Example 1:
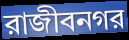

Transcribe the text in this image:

রাজীবনগর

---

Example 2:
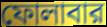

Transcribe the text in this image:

ফোলাবার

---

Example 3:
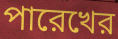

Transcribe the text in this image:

পারেখের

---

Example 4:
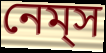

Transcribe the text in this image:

নেম্‌স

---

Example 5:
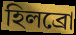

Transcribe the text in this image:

হিলব্রো